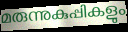
മരുന്നുകുപ്പികളും